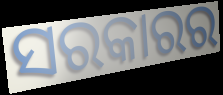
ସରକାରର